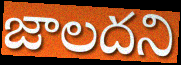
జాలదని